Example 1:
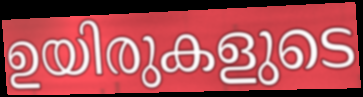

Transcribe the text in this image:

ഉയിരുകളുടെ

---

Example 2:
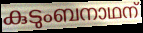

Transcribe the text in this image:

കുടുംബനാഥന്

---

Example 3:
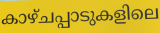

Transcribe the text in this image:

കാഴ്ചപ്പാടുകളിലെ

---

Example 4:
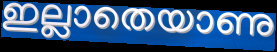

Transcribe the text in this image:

ഇല്ലാതെയാണു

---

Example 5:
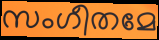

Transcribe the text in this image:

സംഗീതമേ